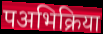
पअभिक्रिया